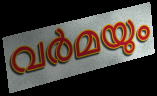
വർമയും